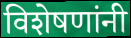
विशेषणांनी